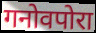
गनोवपोरा